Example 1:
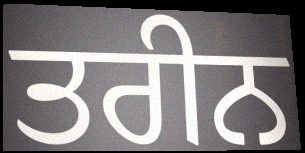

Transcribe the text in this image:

ਤਰੀਨ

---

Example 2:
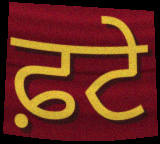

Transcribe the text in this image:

ਫ਼ਟੇ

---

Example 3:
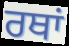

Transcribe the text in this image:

ਰਥਾਂ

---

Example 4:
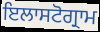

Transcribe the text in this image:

ਇਲਾਸਟੋਗ੍ਰਾਮ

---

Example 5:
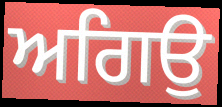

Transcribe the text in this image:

ਅਗਿਉ